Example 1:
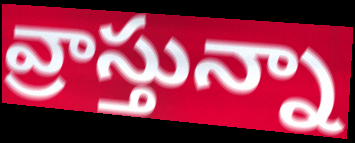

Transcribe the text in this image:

వ్రాస్తున్నా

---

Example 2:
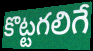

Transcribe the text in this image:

కొట్టగలిగే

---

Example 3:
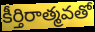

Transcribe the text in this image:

కీర్తిరాత్మవతో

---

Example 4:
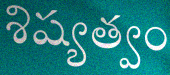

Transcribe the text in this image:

శిష్యత్వం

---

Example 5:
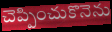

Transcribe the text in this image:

చెప్పించుకొనెను